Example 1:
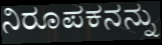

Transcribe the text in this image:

ನಿರೂಪಕನನ್ನು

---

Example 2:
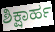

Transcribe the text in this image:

ಶಿಕ್ಷಾರ್ಹ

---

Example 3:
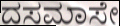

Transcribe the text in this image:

ದಸಮಾಸೇ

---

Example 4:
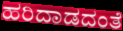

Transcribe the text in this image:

ಹರಿದಾಡದಂತೆ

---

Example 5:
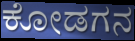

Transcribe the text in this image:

ಕೋಡಗನ